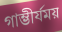
গাম্ভীর্যময়